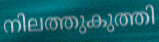
നിലത്തുകുത്തി